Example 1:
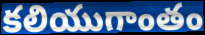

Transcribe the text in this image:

కలియుగాంతం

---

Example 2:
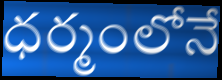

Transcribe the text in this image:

ధర్మంలోనే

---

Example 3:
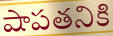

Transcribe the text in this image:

షాపతనికి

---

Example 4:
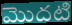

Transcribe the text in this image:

మొదటి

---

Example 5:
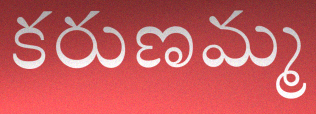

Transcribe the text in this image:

కరుణమ్మ